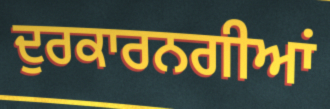
ਦੁਰਕਾਰਨਗੀਆਂ